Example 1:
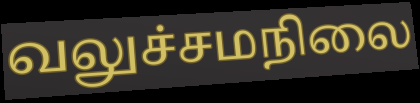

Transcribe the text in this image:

வலுச்சமநிலை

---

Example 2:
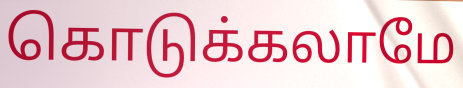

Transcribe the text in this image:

கொடுக்கலாமே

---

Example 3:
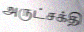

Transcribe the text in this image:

அருட்சக்தி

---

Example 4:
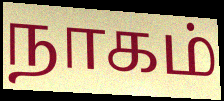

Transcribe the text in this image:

நாகம்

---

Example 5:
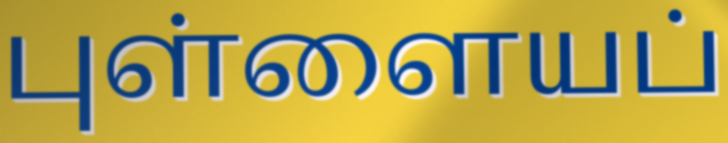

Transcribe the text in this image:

புள்ளையப்